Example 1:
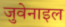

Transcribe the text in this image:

जुवेनाइल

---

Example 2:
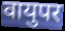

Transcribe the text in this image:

वायुपर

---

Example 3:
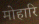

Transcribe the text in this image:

मोहारि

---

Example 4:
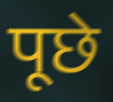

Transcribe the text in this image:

पूछे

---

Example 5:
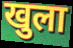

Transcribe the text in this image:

खुला